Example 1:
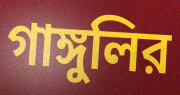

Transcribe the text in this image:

গাঙ্গুলির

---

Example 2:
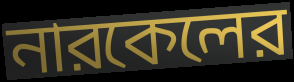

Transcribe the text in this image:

নারকেলের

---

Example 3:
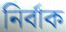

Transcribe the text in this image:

নির্বাক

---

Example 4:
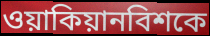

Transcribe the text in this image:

ওয়াকিয়ানবিশকে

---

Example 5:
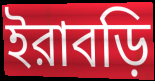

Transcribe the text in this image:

ইরাবড়ি